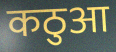
कठुआ